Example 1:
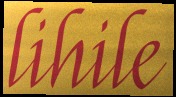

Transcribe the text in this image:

lihile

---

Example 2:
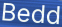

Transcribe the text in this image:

Bedd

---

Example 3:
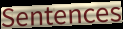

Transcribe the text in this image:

Sentences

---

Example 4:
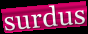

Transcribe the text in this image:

surdus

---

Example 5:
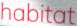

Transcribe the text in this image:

habitat